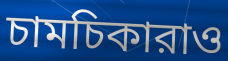
চামচিকারাও